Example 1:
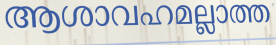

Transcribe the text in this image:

ആശാവഹമല്ലാത്ത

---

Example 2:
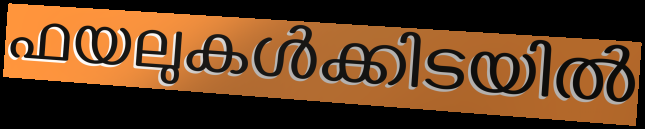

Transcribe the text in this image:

ഫയലുകൾക്കിടയിൽ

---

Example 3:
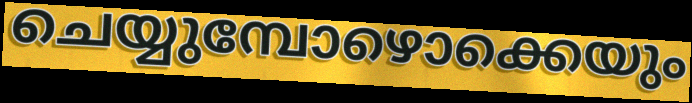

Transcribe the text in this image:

ചെയ്യുമ്പോഴൊക്കെയും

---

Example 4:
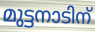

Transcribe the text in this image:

മുട്ടനാടിന്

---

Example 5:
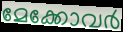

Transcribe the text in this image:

മേക്കോവർ